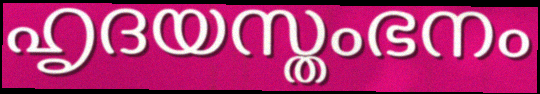
ഹൃദയസ്തംഭനം